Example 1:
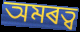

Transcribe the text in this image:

অমৰত্ব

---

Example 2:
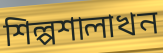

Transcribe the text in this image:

শিল্পশালাখন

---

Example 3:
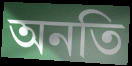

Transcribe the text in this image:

অনতি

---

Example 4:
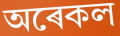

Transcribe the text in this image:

অৰেকল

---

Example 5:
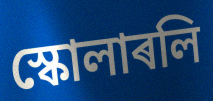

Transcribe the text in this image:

স্কোলাৰলি